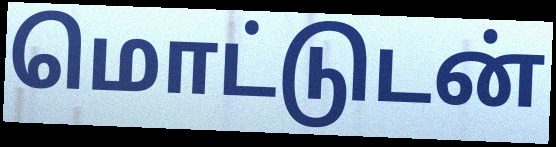
மொட்டுடன்